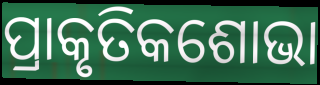
ପ୍ରାକୃତିକଶୋଭା